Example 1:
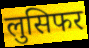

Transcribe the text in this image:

लुसिफर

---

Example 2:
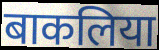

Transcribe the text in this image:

बाकलिया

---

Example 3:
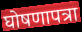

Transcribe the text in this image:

घोषणापत्रा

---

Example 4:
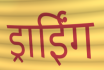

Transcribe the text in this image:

ड्राईिंग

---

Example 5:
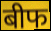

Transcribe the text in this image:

बीफ